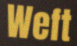
Weft